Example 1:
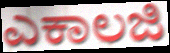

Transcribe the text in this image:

ಎಕಾಲಜಿ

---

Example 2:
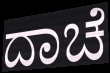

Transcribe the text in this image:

ದಾಚೆ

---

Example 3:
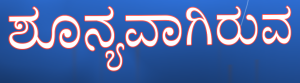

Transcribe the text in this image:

ಶೂನ್ಯವಾಗಿರುವ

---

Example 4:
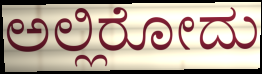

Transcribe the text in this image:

ಅಲ್ಲಿರೋದು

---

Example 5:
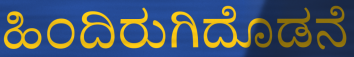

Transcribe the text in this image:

ಹಿಂದಿರುಗಿದೊಡನೆ